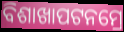
ବିଶାଖାପଟନମ୍ରେ